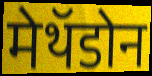
मेथॅडोन